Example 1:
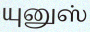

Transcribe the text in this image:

யுனுஸ்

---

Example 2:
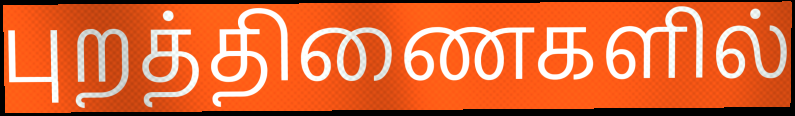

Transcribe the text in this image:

புறத்திணைகளில்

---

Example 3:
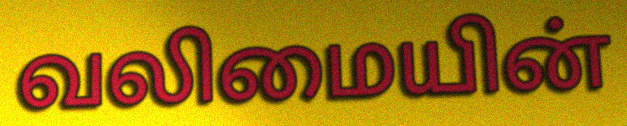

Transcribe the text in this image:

வலிமையின்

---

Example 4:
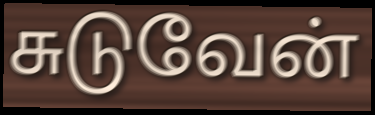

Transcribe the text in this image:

சுடுவேன்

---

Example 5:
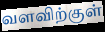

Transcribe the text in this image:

வளவிற்குள்